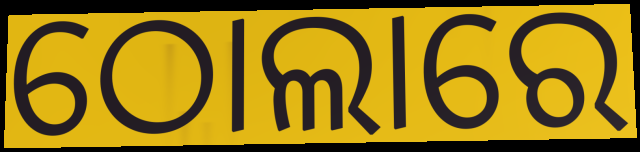
ଠୋଲାରେ